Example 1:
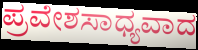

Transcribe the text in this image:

ಪ್ರವೇಶಸಾಧ್ಯವಾದ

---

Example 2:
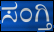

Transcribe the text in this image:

ಸಂಗ್ತಿ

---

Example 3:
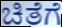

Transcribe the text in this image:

ಚಿತೆಗೆ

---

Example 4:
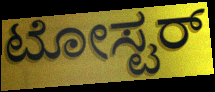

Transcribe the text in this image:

ಟೋಸ್ಟರ್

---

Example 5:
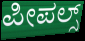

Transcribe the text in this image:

ಪೀಪಲ್ಸ್